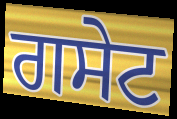
ਗਸੇਟ